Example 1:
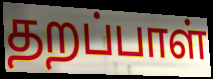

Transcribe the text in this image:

தறப்பாள்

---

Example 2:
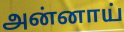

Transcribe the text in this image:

அன்னாய்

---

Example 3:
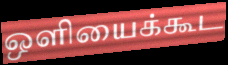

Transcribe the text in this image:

ஒளியைக்கூட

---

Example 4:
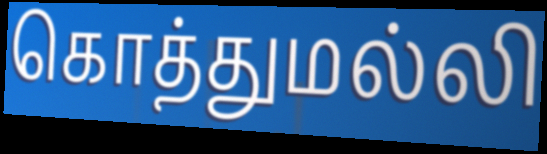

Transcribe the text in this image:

கொத்துமல்லி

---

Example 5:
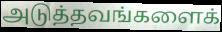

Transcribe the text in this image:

அடுத்தவங்களைக்